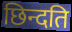
छिन्दति